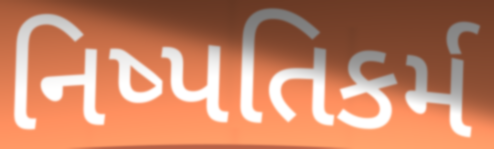
નિષ્પતિકર્મ